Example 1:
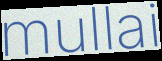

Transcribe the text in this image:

mullai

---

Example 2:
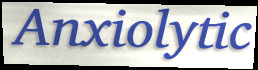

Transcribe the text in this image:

Anxiolytic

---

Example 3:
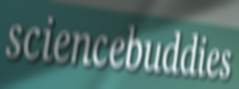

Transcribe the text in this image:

sciencebuddies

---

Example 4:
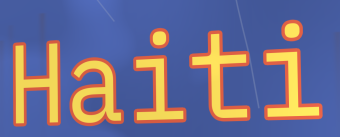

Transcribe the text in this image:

Haiti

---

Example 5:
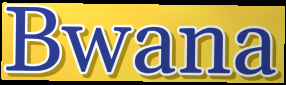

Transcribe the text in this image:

Bwana